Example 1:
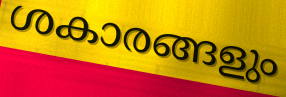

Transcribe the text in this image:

ശകാരങ്ങളും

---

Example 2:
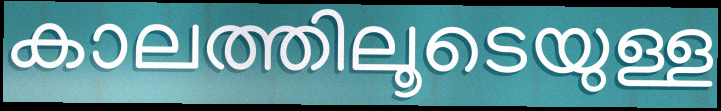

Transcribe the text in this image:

കാലത്തിലൂടെയുള്ള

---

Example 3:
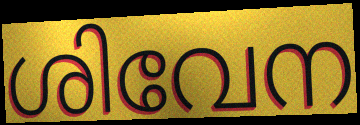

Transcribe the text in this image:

ശിവേന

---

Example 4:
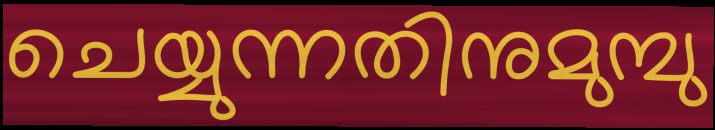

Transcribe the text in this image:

ചെയ്യുന്നതിനുമുമ്പു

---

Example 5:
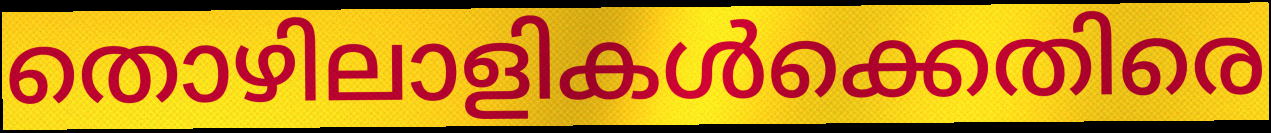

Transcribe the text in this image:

തൊഴിലാളികൾക്കെതിരെ